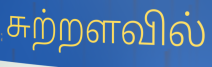
சுற்றளவில்